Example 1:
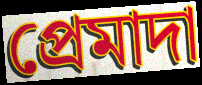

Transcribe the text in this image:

প্ৰেমাদা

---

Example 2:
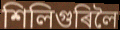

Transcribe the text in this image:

শিলিগুৰিলৈ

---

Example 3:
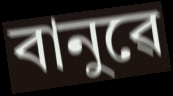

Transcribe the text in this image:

বানুৱে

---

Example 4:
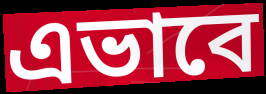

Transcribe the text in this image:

এভাবে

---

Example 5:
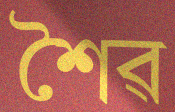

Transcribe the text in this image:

শৈৱ